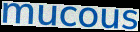
mucous